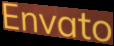
Envato